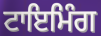
ਟਾਇਮਿੰਗ